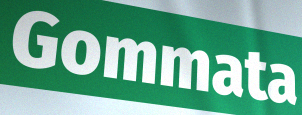
Gommata